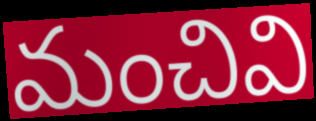
మంచివి